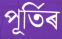
পূৰ্তিৰ